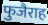
फुजैराह